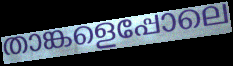
താങ്കളെപ്പോലെ